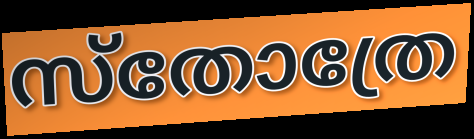
സ്തോത്രേ